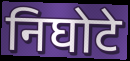
निघोटे